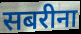
सबरीना